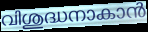
വിശുദ്ധനാകാൻ